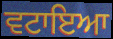
ਵਟਾਇਆ